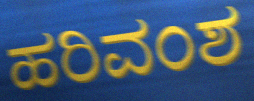
ಹರಿವಂಶ